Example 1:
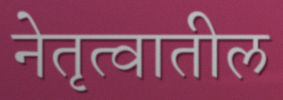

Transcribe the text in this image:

नेतृत्वातील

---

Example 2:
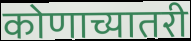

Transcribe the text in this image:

कोणाच्यातरी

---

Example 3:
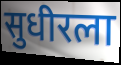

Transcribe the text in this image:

सुधीरला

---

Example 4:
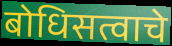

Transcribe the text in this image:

बोधिसत्वाचे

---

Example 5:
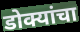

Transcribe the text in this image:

डोक्यांचा